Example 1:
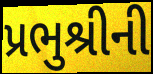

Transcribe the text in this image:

પ્રભુશ્રીની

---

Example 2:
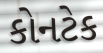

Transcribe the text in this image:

કોનટેક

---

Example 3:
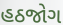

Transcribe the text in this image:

હઠજોગ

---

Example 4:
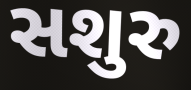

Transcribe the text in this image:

સશુરુ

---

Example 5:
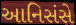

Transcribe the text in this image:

આનિસંસે